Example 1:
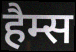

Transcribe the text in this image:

हैम्स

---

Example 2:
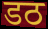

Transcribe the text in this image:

डठ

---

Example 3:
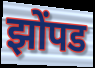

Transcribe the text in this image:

झोंपड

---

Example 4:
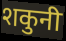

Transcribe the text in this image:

शकुनी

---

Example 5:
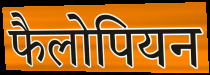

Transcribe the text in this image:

फैलोपियन